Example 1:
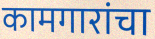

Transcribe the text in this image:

कामगारांचा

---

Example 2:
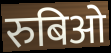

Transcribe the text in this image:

रुबिओ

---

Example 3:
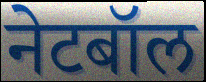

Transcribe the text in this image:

नेटबॉल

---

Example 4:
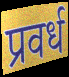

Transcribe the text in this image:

प्रवर्ध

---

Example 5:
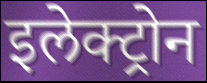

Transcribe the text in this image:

इलेक्ट्रोन